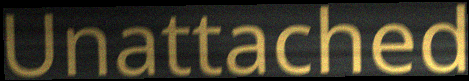
Unattached